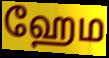
ஹேம